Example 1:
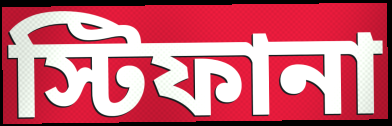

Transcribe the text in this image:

স্টিফানা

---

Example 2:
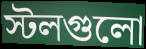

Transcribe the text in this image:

স্টলগুলো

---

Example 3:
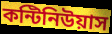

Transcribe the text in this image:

কন্টিনিউয়াস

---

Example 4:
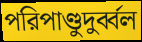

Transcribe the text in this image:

পরিপাণ্ডুদুর্ব্বল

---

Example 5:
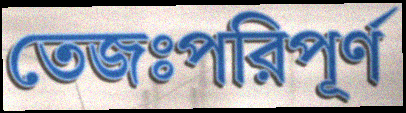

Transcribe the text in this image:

তেজঃপরিপূর্ণ